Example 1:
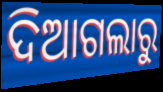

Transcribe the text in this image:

ଦିଆଗଲାରୁ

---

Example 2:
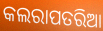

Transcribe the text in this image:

କଲରାପତରିଆ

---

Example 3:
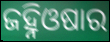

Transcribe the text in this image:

ଜହ୍ନିଓଷାର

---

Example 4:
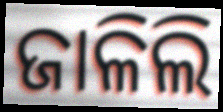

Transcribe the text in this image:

ଜାଳିଲି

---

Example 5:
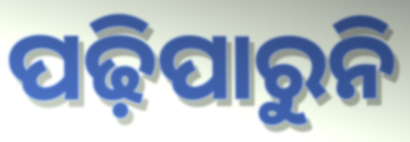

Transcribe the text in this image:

ପଢ଼ିପାରୁନି